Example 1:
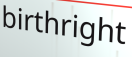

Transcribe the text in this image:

birthright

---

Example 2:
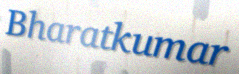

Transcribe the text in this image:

Bharatkumar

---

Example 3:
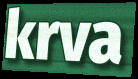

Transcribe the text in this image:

krva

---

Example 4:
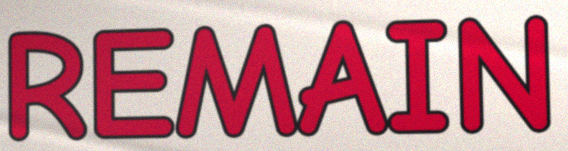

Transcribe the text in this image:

REMAIN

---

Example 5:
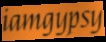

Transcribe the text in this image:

iamgypsy